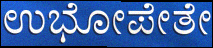
ಉಭೋಪೇತೇ